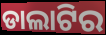
ଡାଲାଟିର